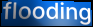
flooding